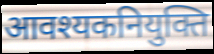
आवश्यकनियुक्ति